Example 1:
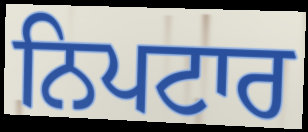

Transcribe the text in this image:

ਨਿਪਟਾਰ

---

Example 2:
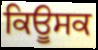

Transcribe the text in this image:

ਕਿਊਸਕ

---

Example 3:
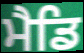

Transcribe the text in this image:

ਮੈਡਿ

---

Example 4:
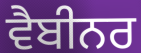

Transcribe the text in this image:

ਵੈਬੀਨਰ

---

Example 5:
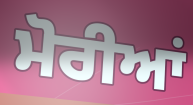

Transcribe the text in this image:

ਮੋਰੀਆਂ